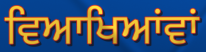
ਵਿਆਖਿਆਂਵਾਂ